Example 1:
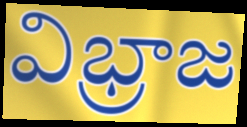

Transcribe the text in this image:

విభ్రాజ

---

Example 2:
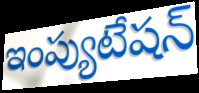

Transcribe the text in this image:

ఇంప్యుటేషన్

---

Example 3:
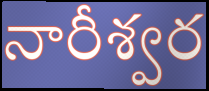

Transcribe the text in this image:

నారీశ్వర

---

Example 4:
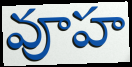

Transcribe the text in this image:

వూహ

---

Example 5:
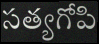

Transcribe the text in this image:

సత్యగోపి